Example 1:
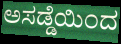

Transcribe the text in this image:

ಅಸಡ್ಡೆಯಿಂದ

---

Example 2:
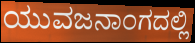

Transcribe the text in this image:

ಯುವಜನಾಂಗದಲ್ಲಿ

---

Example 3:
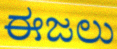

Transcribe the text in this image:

ಈಜಲು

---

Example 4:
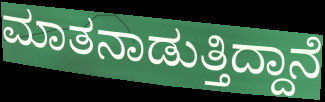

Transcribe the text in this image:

ಮಾತನಾಡುತ್ತಿದ್ದಾನೆ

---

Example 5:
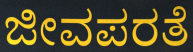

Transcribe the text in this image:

ಜೀವಪರತೆ